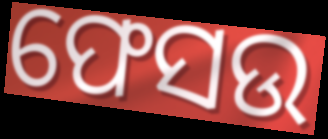
ଫେସଉ